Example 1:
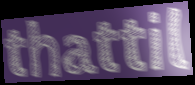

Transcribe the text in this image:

thattil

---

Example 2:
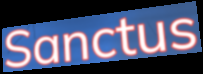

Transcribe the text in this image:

Sanctus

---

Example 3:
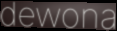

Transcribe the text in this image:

dewona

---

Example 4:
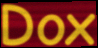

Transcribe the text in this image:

Dox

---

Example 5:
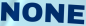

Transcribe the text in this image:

NONE